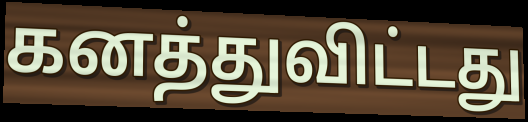
கனத்துவிட்டது